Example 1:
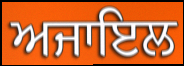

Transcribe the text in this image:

ਅਜਾਇਲ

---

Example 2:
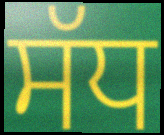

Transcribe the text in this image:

ਸੱਧ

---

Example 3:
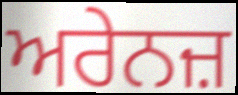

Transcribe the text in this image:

ਅਰੇਨਜ਼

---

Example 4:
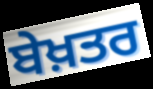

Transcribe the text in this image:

ਬੇਖ਼ਤਰ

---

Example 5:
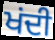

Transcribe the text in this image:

ਖਂਦੀ